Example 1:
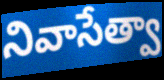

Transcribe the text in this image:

నివాసేత్వా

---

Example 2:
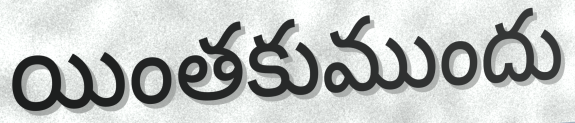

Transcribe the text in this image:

యింతకుముందు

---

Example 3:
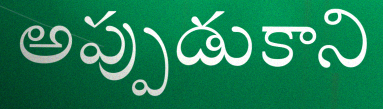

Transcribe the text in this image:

అప్పుడుకాని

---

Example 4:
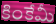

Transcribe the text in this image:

కింకేమీ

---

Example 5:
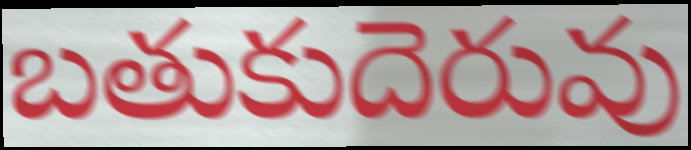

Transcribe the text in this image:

బతుకుదెరువు